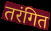
तरंगित